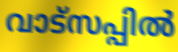
വാട്സപ്പിൽ